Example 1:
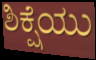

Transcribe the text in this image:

ಶಿಕ್ಷೆಯು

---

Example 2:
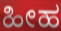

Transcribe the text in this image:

ಹೀಹ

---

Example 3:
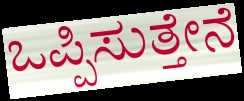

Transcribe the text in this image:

ಒಪ್ಪಿಸುತ್ತೇನೆ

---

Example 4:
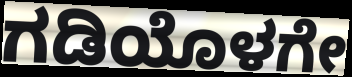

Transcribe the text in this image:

ಗಡಿಯೊಳಗೇ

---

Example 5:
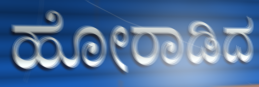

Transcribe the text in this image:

ಹೋರಾಡಿದ